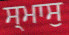
ਸ੍ਮਾਸੁ